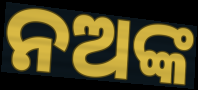
ନଅଙ୍କ